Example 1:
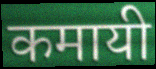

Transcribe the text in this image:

कमायी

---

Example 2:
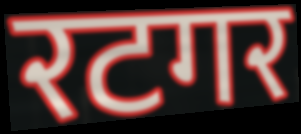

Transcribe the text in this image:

रटगर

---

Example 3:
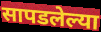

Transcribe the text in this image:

सापडलेल्या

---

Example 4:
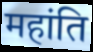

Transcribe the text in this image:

महांति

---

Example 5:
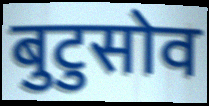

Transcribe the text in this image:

बुटुसोव